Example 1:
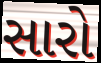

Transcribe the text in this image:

સારો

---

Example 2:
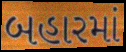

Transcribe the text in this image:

બહારમાં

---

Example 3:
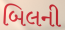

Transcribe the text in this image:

બિલની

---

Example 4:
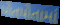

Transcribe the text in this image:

પોતપોતામાં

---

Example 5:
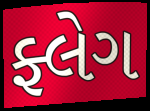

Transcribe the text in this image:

ફ્લેગ